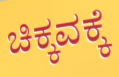
ಚಿಕ್ಕವಕ್ಕೆ